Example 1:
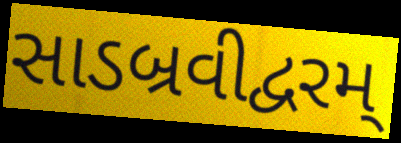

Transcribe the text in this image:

સાડબ્રવીદ્વરમ્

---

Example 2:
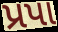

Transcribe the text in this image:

પ્રપા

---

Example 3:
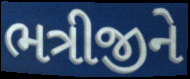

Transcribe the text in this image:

ભત્રીજીને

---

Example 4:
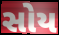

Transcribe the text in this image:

સોય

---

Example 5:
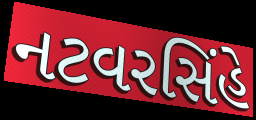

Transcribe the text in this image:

નટવરસિંહે